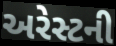
અરેસ્ટની